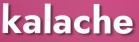
kalache